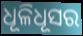
ଧୂଳିଧୂସର